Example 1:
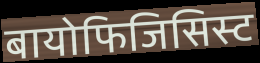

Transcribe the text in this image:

बायोफिजिसिस्ट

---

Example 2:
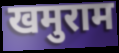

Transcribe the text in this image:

खमुराम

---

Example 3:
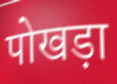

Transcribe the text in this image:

पोखड़ा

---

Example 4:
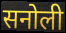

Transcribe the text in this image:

सनोली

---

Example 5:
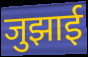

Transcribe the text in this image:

जुझाई